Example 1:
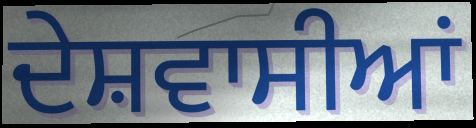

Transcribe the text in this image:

ਦੇਸ਼ਵਾਸੀਆਂ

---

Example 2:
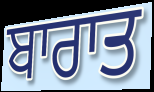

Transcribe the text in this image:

ਬਾਰਾਤ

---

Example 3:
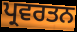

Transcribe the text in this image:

ਪ੍ਰਵਰਤਨ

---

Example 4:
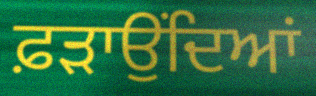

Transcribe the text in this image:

ਫ਼ੜਾਉਂਦਿਆਂ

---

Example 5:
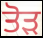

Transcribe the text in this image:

ਤੋਡ਼